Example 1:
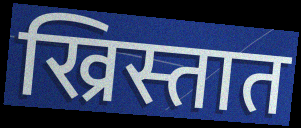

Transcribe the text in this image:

ख्रिस्तात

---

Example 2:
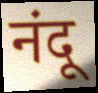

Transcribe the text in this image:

नंदू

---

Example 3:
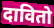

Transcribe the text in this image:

दावितो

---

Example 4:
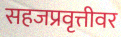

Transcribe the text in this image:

सहजप्रवृत्तीवर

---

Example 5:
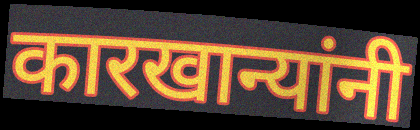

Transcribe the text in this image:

कारखान्यांनी